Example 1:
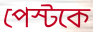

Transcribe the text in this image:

পেস্টকে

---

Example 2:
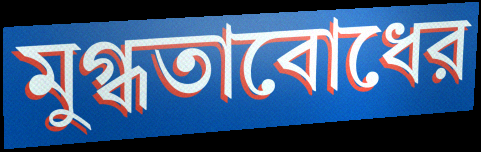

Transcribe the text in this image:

মুগ্ধতাবোধের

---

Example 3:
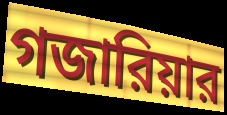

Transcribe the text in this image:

গজারিয়ার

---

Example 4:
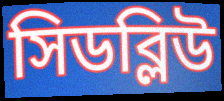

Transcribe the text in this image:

সিডব্লিউ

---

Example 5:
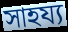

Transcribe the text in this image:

সাহয্য